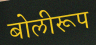
बोलीरूप